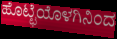
ಹೊಟ್ಟೆಯೊಳಗಿನಿಂದ